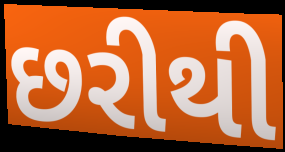
છરીથી